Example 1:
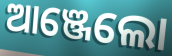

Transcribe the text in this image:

ଆଞ୍ଜେଲୋ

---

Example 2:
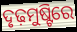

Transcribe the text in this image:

ଦୃଢ଼ମୁଷ୍ଟିରେ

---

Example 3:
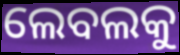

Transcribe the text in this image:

ଲେବଲକୁ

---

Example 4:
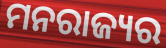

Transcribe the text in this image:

ମନରାଜ୍ୟର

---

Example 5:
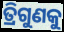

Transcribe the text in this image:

ତ୍ରିଗୁଣକୁ